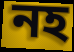
নহ